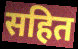
सहित